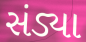
સંડ્યા